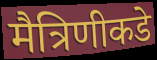
मैत्रिणीकडे